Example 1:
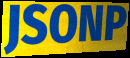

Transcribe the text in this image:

JSONP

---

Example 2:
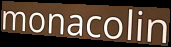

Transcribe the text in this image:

monacolin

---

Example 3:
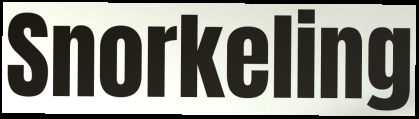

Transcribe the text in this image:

Snorkeling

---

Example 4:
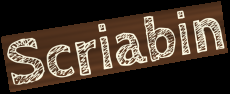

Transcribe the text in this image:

Scriabin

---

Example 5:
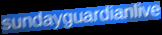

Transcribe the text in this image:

sundayguardianlive